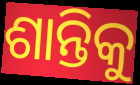
ଶାନ୍ତିକୁ